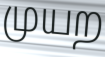
முயற